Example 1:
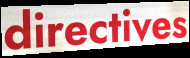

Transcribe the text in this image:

directives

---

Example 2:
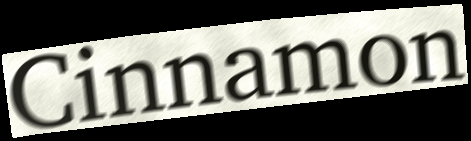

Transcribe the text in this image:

Cinnamon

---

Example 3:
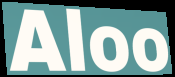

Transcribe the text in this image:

Aloo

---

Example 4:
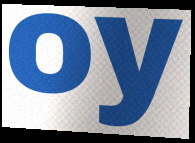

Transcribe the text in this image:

oy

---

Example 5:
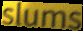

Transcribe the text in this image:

slums